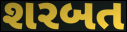
શરબત